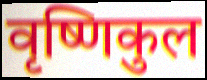
वृष्णिकुल